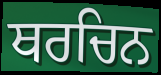
ਥਰਚਿਨ